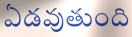
ఏడవుతుంది